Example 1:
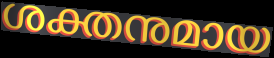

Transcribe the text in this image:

ശക്തനുമായ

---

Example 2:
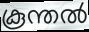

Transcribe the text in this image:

കൂന്തൽ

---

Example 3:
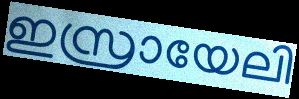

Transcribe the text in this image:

ഇസ്രായേലി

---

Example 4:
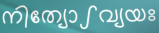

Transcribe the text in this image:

നിത്യോഽവ്യയഃ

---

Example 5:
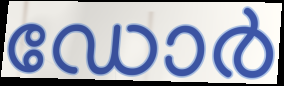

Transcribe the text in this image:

ഡോർ